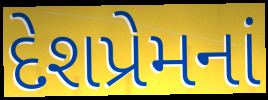
દેશપ્રેમનાં